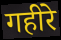
गहीरे